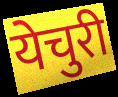
येचुरी